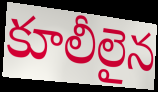
కూలీలైన